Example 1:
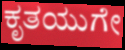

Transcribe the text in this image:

ಕೃತಯುಗೇ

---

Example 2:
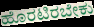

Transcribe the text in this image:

ಹೊರಟಿರಬೇಕು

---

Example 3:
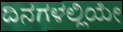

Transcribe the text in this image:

ದಿನಗಳಲ್ಲಿಯೇ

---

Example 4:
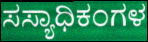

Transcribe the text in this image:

ಸಸ್ಯಾಧಿಕಂಗಳ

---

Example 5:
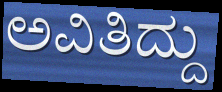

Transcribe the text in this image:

ಅವಿತಿದ್ದು